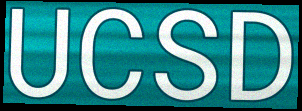
UCSD